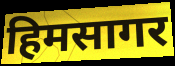
हिमसागर